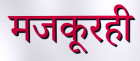
मजकूरही